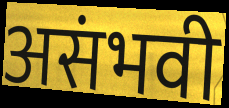
असंभवी